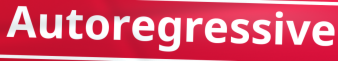
Autoregressive